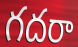
గదరా